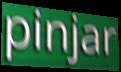
pinjar